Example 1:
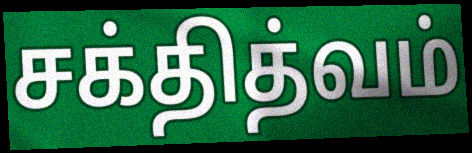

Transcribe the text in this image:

சக்தித்வம்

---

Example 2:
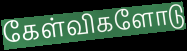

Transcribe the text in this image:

கேள்விகளோடு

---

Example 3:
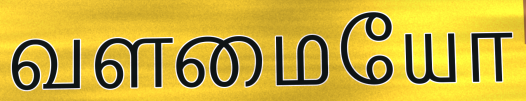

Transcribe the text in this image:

வளமையோ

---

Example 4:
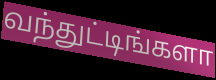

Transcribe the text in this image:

வந்துட்டிங்களா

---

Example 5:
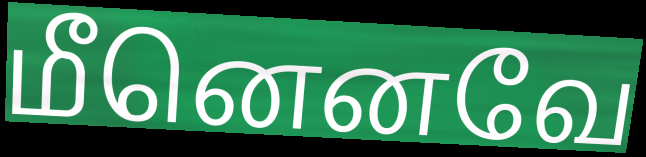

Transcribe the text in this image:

மீனெனவே